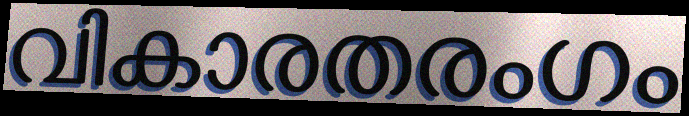
വികാരതരംഗം